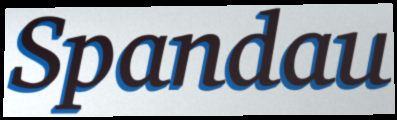
Spandau